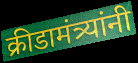
क्रीडामंत्र्यांनी